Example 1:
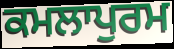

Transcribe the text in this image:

ਕਮਲਾਪੁਰਮ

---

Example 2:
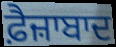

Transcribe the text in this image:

ਫ਼ੈਜ਼ਾਬਾਦ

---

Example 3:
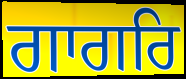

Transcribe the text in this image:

ਗਾਗਰਿ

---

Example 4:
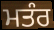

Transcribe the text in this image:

ਮਤੰਰ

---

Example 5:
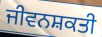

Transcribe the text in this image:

ਜੀਵਨਸ਼ਕਤੀ